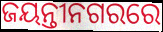
ଜୟନ୍ତୀନଗରରେ